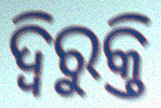
ଦ୍ୱିରୁକ୍ତି